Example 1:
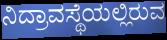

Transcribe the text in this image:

ನಿದ್ರಾವಸ್ಥೆಯಲ್ಲಿರುವ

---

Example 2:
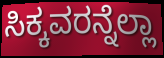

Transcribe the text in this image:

ಸಿಕ್ಕವರನ್ನೆಲ್ಲಾ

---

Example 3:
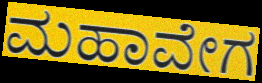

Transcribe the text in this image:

ಮಹಾವೇಗ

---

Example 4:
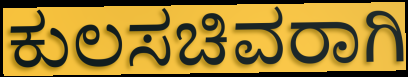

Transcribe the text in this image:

ಕುಲಸಚಿವರಾಗಿ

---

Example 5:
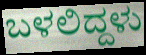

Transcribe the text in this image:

ಬಳಲಿದ್ದಳು